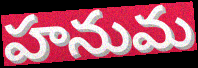
హనుమ